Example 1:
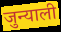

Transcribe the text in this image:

जुन्याली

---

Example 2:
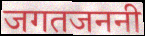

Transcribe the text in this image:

जगतजननी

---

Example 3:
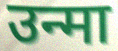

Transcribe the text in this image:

उन्मा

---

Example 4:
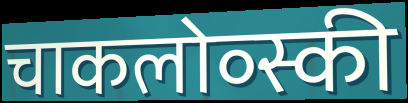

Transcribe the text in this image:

चाकलोव्स्की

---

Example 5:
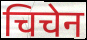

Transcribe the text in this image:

चिचेन